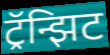
ट्रॅन्झिट